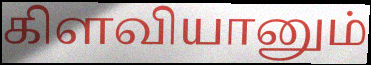
கிளவியானும்